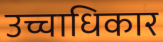
उच्चाधिकार